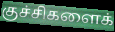
குச்சிகளைக்